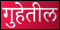
गुहेतील